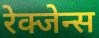
रेक्जेन्स